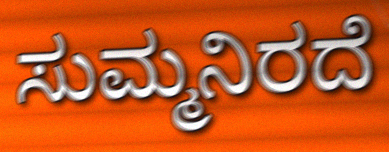
ಸುಮ್ಮನಿರದೆ